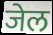
जेल